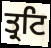
ਤ੍ਰਟਿ